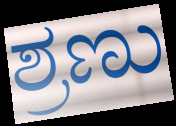
ಶ್ರಣು